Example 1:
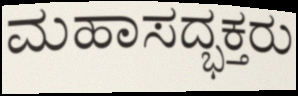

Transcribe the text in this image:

ಮಹಾಸದ್ಭಕ್ತರು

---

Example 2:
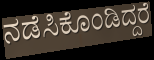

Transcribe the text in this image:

ನಡೆಸಿಕೊಂಡಿದ್ದರೆ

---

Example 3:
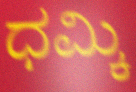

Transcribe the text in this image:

ಧಮ್ಕಿ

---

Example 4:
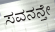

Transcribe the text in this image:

ಸವನನ್ತೇ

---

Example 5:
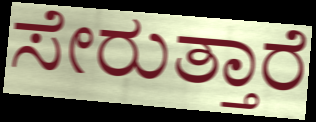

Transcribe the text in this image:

ಸೇರುತ್ತಾರೆ